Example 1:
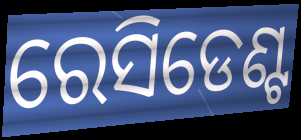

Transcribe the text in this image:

ରେସିଡେଣ୍ଟ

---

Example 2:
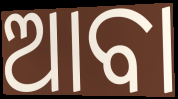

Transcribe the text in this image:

ଆବା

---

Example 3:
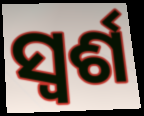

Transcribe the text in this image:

ସ୍ୱର୍ଶ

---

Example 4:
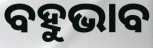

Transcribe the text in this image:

ବହୁଭାବ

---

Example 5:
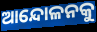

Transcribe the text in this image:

ଆନ୍ଦୋଳନକୁ